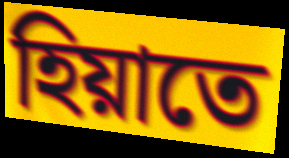
হিয়াতে